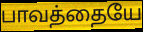
பாவத்தையே